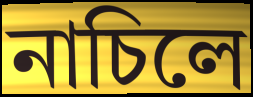
নাচিলে